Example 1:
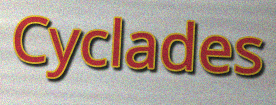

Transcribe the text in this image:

Cyclades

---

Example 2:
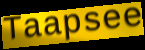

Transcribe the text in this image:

Taapsee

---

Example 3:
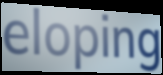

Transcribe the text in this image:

eloping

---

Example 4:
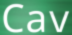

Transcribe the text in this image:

Cav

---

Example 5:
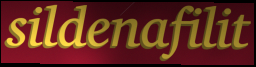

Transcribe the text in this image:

sildenafilit